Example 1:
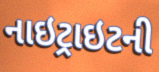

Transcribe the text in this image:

નાઇટ્રાઇટની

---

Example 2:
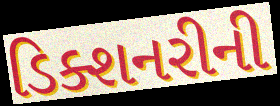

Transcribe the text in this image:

ડિક્શનરીની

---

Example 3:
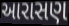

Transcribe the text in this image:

આરાસણ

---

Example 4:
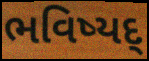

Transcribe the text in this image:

ભવિષ્યદ્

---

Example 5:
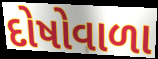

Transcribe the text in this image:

દોષોવાળા